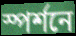
স্পর্শনে